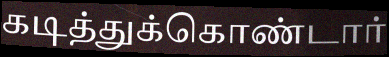
கடித்துக்கொண்டார்